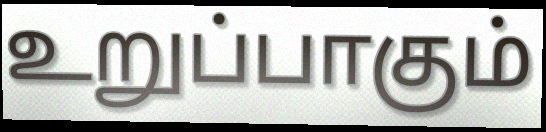
உறுப்பாகும்